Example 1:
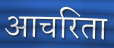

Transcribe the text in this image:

आचरिता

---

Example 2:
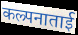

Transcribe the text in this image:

कल्पनाताई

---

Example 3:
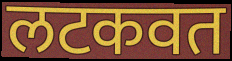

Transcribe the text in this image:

लटकवत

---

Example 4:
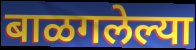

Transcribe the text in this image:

बाळगलेल्या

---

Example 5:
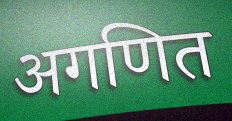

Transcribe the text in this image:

अगणित